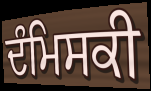
ਦੰਮਿਸਕੀ